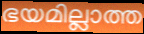
ഭയമില്ലാത്ത